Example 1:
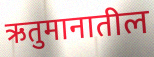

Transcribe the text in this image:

ऋतुमानातील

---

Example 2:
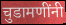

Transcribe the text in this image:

चुडामणींनी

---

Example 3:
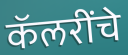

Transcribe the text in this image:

कॅलरींचे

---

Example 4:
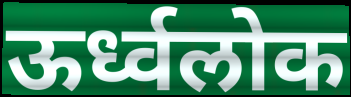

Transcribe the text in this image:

ऊर्ध्वलोक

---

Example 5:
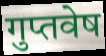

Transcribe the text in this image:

गुप्तवेष